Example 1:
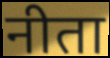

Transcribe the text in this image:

नीता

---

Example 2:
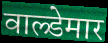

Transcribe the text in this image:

वाल्डेमार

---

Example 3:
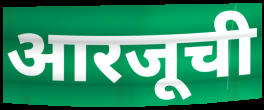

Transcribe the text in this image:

आरजूची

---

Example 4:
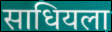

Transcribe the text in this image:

साधियला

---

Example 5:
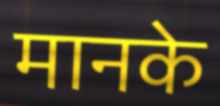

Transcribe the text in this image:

मानके